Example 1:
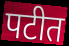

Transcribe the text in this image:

पटीत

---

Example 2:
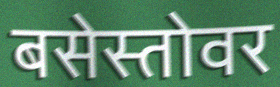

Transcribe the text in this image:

बसेस्तोवर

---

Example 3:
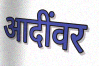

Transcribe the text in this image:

आदींवर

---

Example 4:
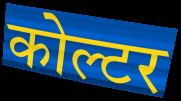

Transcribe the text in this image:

कोल्टर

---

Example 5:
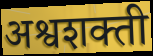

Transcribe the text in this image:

अश्वशक्ती